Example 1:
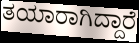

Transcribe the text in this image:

ತಯಾರಾಗಿದ್ದಾರೆ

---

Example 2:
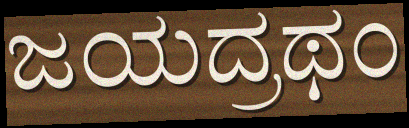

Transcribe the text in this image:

ಜಯದ್ರಥಂ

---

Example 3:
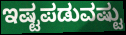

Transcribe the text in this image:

ಇಷ್ಟಪಡುವಷ್ಟು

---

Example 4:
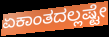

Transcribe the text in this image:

ಏಕಾಂತದಲ್ಲಷ್ಟೇ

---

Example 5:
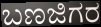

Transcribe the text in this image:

ಬಣಜಿಗರ